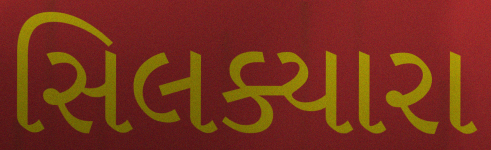
સિલક્યારા